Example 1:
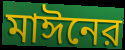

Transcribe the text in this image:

মাঈনের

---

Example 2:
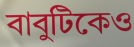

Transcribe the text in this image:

বাবুটিকেও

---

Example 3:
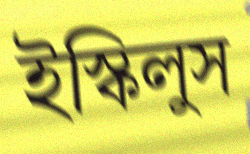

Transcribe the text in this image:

ইস্কিলুস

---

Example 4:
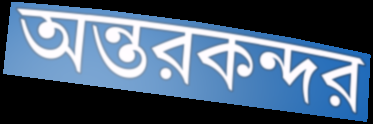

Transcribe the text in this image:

অন্তরকন্দর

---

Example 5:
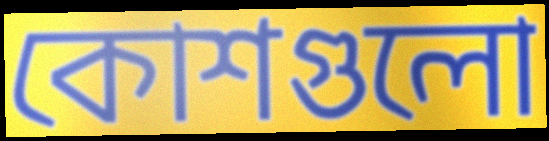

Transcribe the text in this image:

কোশগুলো